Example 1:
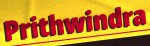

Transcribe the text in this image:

Prithwindra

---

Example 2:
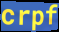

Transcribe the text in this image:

crpf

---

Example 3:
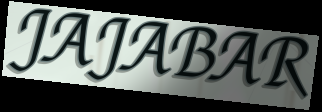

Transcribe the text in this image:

JAJABAR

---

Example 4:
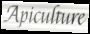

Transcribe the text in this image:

Apiculture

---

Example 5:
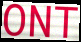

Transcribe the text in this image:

ONT